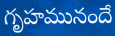
గృహమునందే